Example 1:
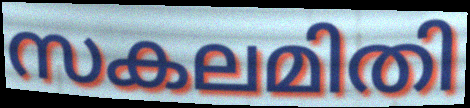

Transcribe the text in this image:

സകലമിതി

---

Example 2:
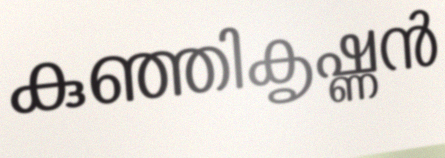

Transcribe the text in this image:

കുഞ്ഞികൃഷ്ണൻ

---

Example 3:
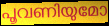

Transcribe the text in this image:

പൂവണിയുമോ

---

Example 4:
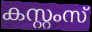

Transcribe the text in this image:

കസ്റ്റംസ്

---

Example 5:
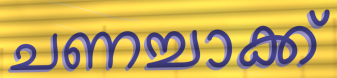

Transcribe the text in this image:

ചണച്ചാക്ക്